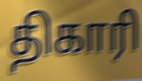
திகாரி